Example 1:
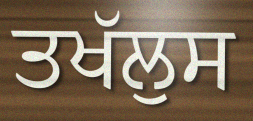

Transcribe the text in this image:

ਤਖੱਲੁਸ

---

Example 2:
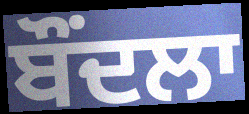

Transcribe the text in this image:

ਬੌਂਦਲਾ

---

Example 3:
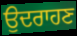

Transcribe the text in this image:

ਉਦਰਾਹਣ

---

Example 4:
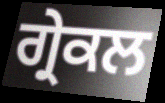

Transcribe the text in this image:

ਗ੍ਰੇਕਲ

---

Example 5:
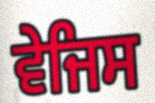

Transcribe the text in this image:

ਵੇਜਿਸ